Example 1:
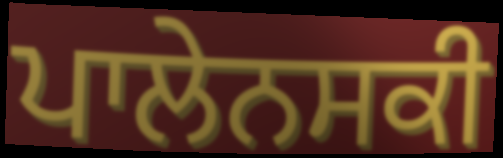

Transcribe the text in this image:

ਪਾਲੇਨਸਕੀ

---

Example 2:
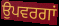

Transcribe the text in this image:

ਉਪਵਰਗਾਂ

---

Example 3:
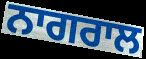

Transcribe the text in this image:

ਨਾਗਰਾਲ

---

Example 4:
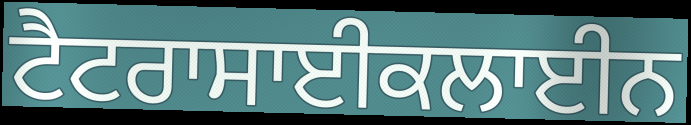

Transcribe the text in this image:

ਟੈਟਰਾਸਾਈਕਲਾਈਨ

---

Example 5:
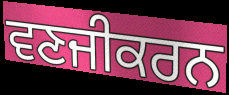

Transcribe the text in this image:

ਵਣਜੀਕਰਨ